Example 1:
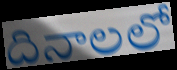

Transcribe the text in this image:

దినాలలో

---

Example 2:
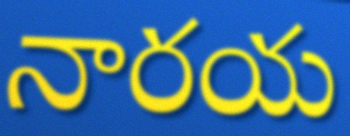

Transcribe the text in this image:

నారయ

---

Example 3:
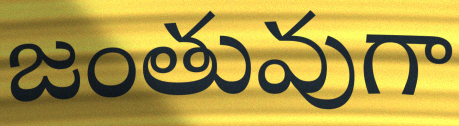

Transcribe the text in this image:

జంతువుగా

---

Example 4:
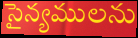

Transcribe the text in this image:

సైన్యములను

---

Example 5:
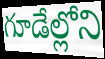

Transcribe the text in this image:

గూడేల్లోని